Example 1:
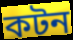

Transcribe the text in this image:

কটন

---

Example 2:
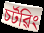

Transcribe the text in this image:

চৰ্টৱিং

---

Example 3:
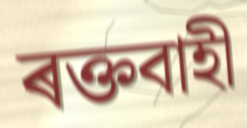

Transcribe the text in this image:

ৰক্তবাহী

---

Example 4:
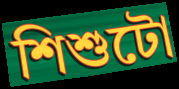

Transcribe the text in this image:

শিশুটো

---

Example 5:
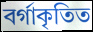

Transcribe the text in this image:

বৰ্গাকৃতিত